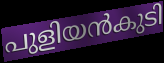
പുളിയൻകുടി